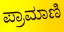
ಪ್ರಾಮಾಣಿ